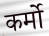
कर्मो